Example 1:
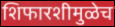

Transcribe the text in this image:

शिफारशीमुळेच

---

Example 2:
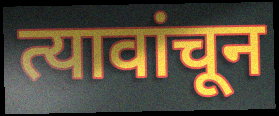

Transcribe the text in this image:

त्यावांचून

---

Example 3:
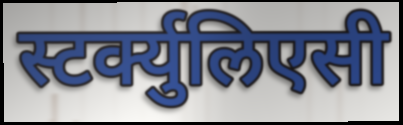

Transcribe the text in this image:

स्टर्क्युलिएसी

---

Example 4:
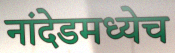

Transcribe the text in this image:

नांदेडमध्येच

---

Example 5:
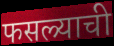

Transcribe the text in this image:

फसल्याची